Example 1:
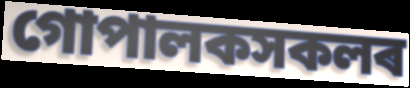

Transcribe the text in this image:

গোপালকসকলৰ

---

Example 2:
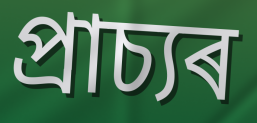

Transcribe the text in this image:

প্ৰাচ্যৰ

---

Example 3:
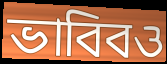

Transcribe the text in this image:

ভাবিবও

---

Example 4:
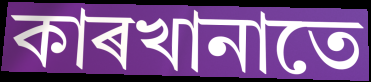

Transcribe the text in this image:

কাৰখানাতে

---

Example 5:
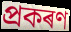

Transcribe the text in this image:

প্ৰকৰণ